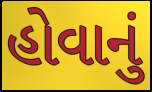
હોવાનું